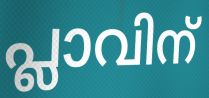
പ്ലാവിന്